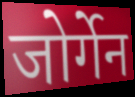
जोर्गेन